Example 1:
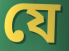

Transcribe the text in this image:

যে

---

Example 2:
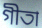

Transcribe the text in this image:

গীতা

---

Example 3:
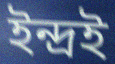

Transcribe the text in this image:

ইন্দ্ৰই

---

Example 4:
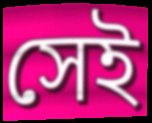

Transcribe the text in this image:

সেই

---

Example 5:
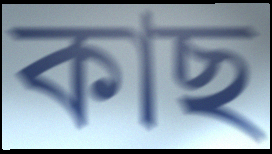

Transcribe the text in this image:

কাছ